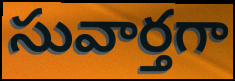
సువార్తగా